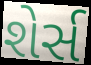
શેર્સ